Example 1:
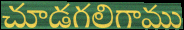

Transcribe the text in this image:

చూడగలిగాము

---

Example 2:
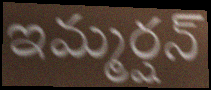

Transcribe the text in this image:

ఇమ్మర్షన్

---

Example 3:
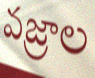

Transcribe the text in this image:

వజ్రాల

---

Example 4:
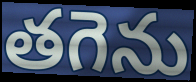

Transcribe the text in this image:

తగెను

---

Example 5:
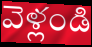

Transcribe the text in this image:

వెళ్లండి